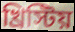
খ্রিস্টিয়